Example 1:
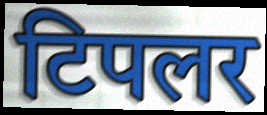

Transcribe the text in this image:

टिपलर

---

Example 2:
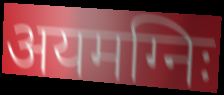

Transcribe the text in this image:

अयमग्निः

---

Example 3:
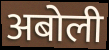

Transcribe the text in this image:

अबोली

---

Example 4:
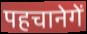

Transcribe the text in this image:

पहचानेगें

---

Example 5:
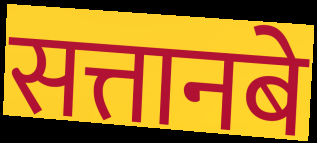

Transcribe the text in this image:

सत्तानबे